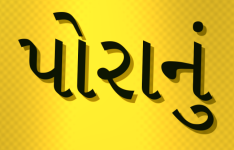
પોરાનું